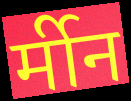
र्मीन